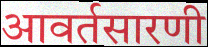
आवर्तसारणी